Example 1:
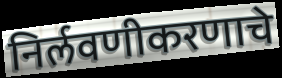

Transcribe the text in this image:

निर्लवणीकरणाचे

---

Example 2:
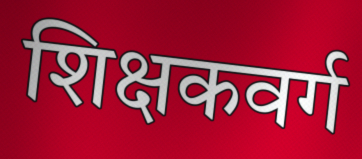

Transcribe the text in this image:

शिक्षकवर्ग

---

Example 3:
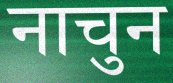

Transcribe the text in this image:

नाचुन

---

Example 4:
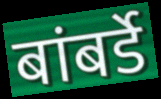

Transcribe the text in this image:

बांबर्डे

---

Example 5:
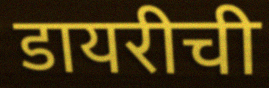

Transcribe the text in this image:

डायरीची